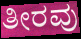
ತೀರವು